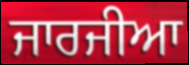
ਜਾਰਜੀਆ